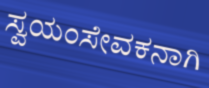
ಸ್ವಯಂಸೇವಕನಾಗಿ